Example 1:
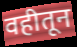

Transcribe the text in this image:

वहीतून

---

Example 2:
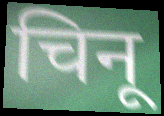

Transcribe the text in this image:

चिनू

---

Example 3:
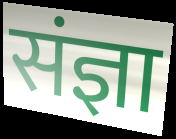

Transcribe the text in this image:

संज्ञा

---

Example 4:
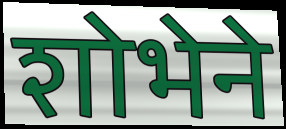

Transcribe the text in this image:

शोभेने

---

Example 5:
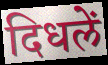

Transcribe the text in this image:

दिधलें